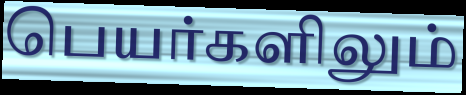
பெயர்களிலும்